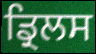
ਡ੍ਰਿਲਸ